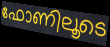
ഫോണിലൂടെ